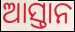
ଆସ୍ତାନ